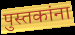
पुस्तकांना